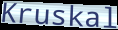
Kruskal